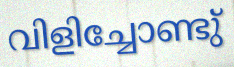
വിളിച്ചോണ്ടു്